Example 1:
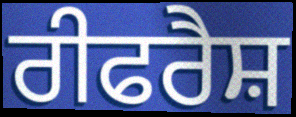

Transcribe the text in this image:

ਰੀਫਰੈਸ਼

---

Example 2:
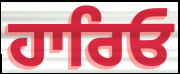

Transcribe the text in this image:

ਹਾਰਿਓ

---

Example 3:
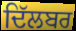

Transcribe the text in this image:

ਦਿੱਲਬਰ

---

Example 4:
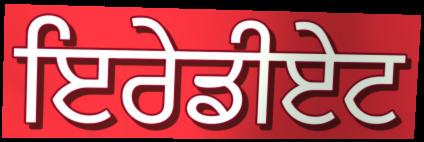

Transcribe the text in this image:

ਇਰੇਡੀਏਟ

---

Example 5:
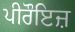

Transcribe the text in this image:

ਪੀਰੌਇਜ਼